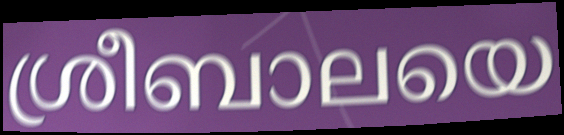
ശ്രീബാലയെ